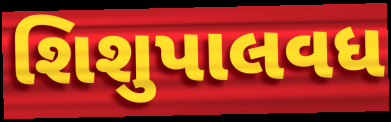
શિશુપાલવધ